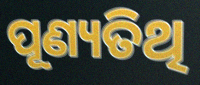
ପୂଣ୍ୟତିଥି